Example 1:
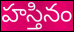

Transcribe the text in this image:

హస్తినం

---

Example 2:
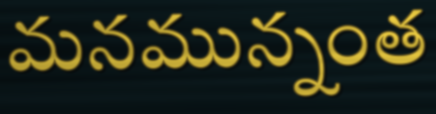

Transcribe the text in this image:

మనమున్నంత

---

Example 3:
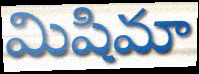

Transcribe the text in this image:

మిషిమా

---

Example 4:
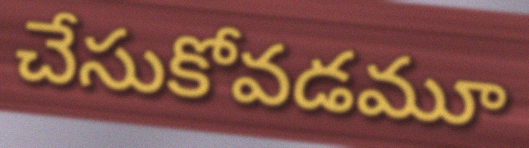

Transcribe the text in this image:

చేసుకోవడమూ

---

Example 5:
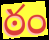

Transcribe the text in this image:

ఠం